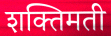
शक्तिमती